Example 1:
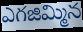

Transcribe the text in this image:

ఎగజిమ్మిన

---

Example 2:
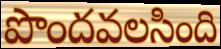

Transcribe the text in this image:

పొందవలసింది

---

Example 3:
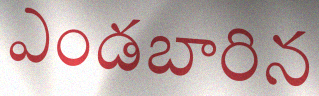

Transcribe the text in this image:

ఎండబారిన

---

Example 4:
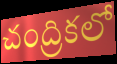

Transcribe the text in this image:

చంద్రికలో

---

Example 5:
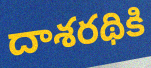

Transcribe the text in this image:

దాశరథికి